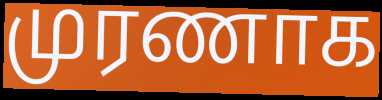
முரணாக